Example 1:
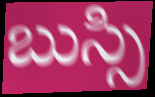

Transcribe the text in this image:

బుస్సి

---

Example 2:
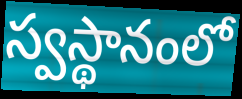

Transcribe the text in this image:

స్వస్థానంలో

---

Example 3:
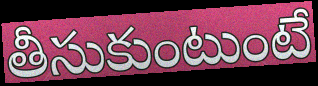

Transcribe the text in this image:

తీసుకుంటుంటే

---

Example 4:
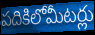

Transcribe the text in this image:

పదికిలోమీటర్లు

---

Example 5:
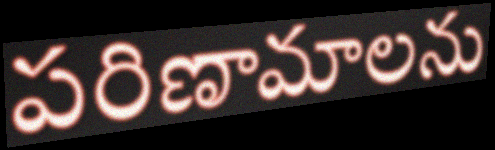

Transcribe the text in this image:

పరిణామాలను